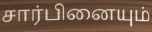
சார்பினையும்